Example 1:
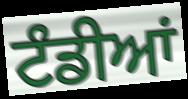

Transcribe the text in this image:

ਟੰਡੀਆਂ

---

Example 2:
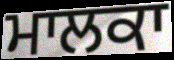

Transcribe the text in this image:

ਮਾਲਕਾ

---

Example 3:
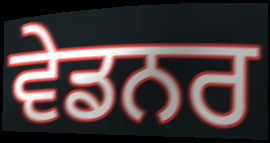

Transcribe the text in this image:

ਵੇਡਨਰ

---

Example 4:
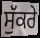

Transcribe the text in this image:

ਸੁੱਕਰੇ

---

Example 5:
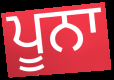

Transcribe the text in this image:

ਪੂਨਾ